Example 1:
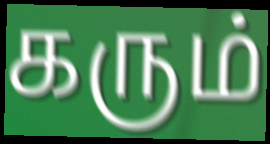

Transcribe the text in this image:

கரும்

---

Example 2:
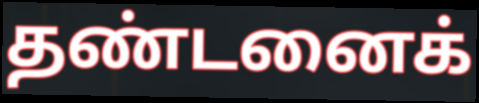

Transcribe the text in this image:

தண்டனைக்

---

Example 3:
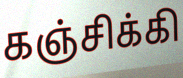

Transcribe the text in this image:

கஞ்சிக்கி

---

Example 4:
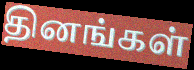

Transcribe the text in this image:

தினங்கள்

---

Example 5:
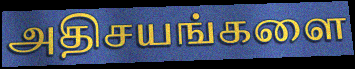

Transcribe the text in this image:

அதிசயங்களை